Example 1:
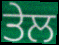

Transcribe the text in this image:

ਤੇਲ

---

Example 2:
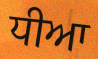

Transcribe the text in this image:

ਧੀਆ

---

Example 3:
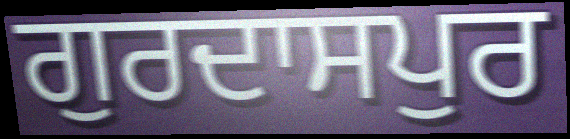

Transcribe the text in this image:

ਗੁਰਦਾਸਪੁਰ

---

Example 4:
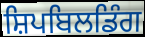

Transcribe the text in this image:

ਸ਼ਿਪਬਿਲਡਿੰਗ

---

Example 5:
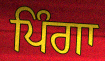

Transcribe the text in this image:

ਪਿੰਗਾ